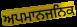
ਅਪਮਾਨਜਨਿਕ